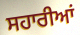
ਸਹਾਰੀਆਂ